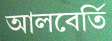
আলবের্তি